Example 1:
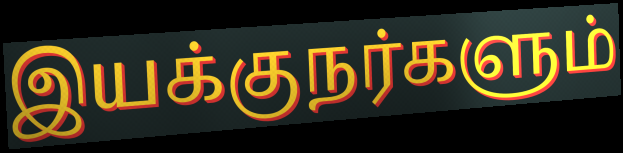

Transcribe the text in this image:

இயக்குநர்களும்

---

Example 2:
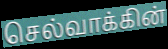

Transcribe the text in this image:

செல்வாக்கின்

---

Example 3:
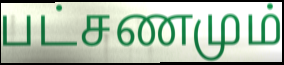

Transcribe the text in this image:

பட்சணமும்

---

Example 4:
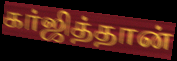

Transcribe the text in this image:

கர்ஜித்தான்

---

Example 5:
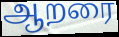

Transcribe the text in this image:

ஆறரை